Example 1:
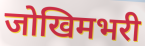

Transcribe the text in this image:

जोखिमभरी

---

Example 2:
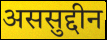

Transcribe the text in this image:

अससुद्दीन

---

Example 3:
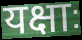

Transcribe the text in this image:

यक्षाः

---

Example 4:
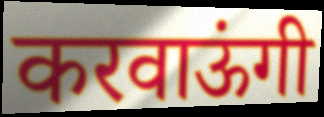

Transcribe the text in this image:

करवाऊंगी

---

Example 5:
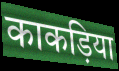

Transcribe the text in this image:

काकड़िया